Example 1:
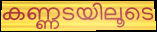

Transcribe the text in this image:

കണ്ണടയിലൂടെ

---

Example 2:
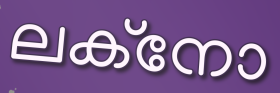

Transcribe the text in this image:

ലക്നോ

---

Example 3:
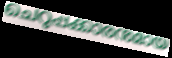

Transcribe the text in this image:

ചെറുപ്പക്കാരനുമായ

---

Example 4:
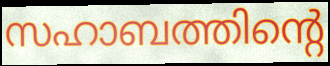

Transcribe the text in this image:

സഹാബത്തിന്റെ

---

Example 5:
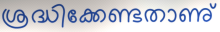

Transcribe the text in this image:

ശ്രദ്ധിക്കേണ്ടതാണു്